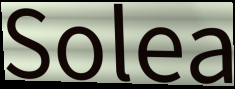
Solea